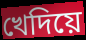
খেদিয়ে